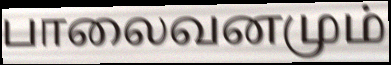
பாலைவனமும்